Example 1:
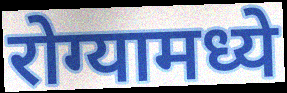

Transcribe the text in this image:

रोग्यामध्ये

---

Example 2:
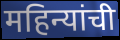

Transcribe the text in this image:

महिन्यांची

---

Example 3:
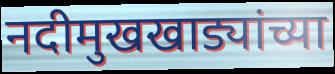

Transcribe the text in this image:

नदीमुखखाड्यांच्या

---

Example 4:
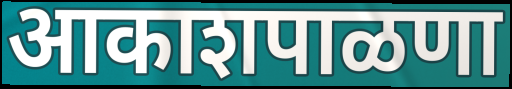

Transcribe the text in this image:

आकाशपाळणा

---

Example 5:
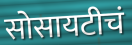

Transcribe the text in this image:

सोसायटीचं